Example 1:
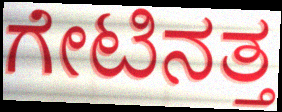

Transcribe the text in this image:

ಗೇಟಿನತ್ತ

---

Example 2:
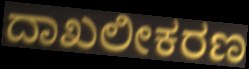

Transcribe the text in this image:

ದಾಖಲೀಕರಣ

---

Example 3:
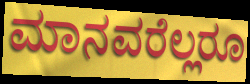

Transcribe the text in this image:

ಮಾನವರೆಲ್ಲರೂ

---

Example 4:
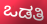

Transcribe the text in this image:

ಒಡತಿ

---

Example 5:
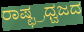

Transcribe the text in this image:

ರಾಷ್ಟ್ರಧ್ವಜದ